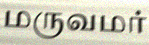
மருவமர்